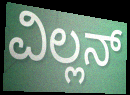
ವಿಲ್ಲನ್